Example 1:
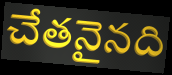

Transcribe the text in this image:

చేతనైనది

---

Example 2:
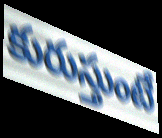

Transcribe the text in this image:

కురుస్తుంటే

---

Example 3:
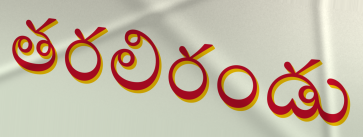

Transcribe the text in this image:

తరలిరండు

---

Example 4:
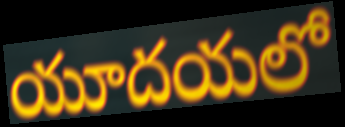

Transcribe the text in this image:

యూదయలో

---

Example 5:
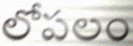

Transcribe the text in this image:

లోపలం